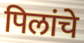
पिलांचे